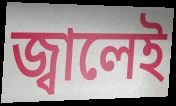
জ্বালেই